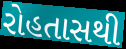
રોહતાસથી